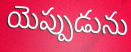
యెప్పుడును